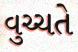
વુચ્ચતે